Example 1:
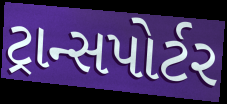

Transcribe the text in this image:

ટ્રાન્સપોર્ટર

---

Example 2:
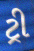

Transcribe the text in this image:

ટ્રી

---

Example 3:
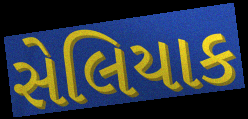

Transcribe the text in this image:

સેલિયાક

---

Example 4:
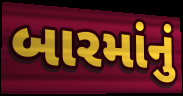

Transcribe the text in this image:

બારમાંનું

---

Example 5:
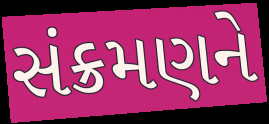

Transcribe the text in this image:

સંક્રમણને